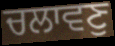
ਚਲਾਵਣੁ